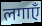
लगाएँ